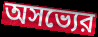
অসভ্যের